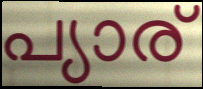
പ്യാര്